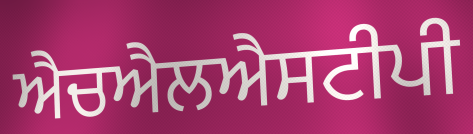
ਐਚਐਲਐਸਟੀਪੀ